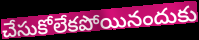
చేసుకోలేకపోయినందుకు